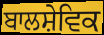
ਬਾਲਸ਼ੇਵਿਕ